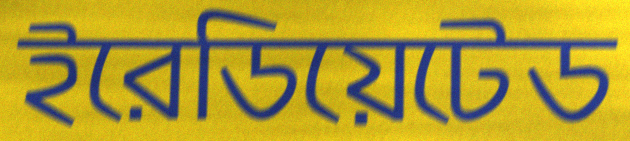
ইরেডিয়েটেড